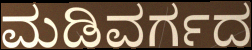
ಮಡಿವರ್ಗದ